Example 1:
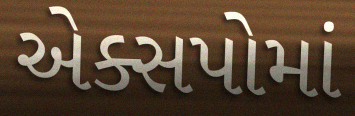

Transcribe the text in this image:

એક્સપોમાં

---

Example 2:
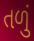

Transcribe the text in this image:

તળું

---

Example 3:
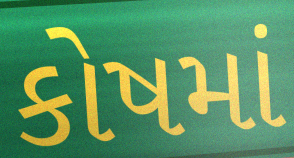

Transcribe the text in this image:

કોષમાં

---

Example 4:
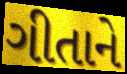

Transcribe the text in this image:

ગીતાને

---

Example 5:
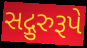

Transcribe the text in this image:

સદ્ગુરુરૂપે